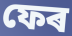
ফেৰ